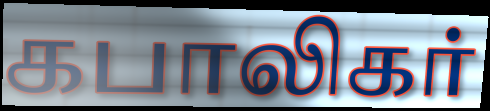
கபாலிகர்